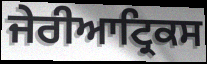
ਜੇਰੀਆਟ੍ਰਿਕਸ